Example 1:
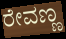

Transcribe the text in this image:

ರೇವಣ್ಣ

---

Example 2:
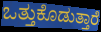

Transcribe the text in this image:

ಒತ್ತುಕೊಡುತ್ತಾರೆ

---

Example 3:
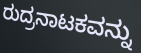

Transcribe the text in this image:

ರುದ್ರನಾಟಕವನ್ನು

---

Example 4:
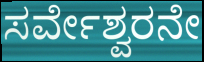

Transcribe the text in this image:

ಸರ್ವೇಶ್ವರನೇ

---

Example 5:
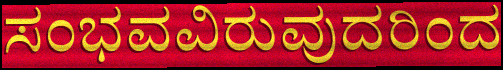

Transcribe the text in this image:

ಸಂಭವವಿರುವುದರಿಂದ